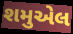
શમુએલ